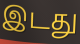
இடது